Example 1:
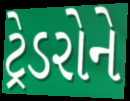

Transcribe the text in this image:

ટ્રેડરોને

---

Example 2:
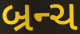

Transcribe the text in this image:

બ્રન્ચ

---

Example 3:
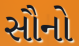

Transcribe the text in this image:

સૌનો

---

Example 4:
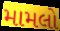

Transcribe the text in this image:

મામલો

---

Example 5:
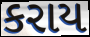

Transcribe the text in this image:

કરાય